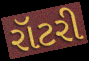
રૉટરી